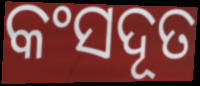
କଂସଦୂତ